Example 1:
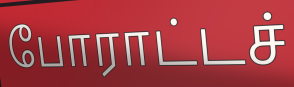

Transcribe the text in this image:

போராட்டச்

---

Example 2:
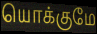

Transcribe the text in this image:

யொக்குமே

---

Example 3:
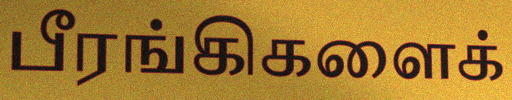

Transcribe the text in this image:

பீரங்கிகளைக்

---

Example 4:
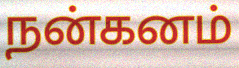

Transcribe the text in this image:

நன்கனம்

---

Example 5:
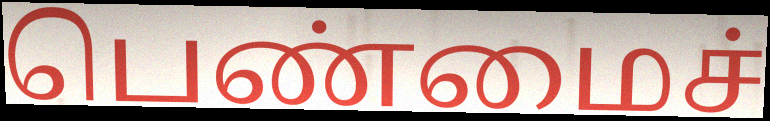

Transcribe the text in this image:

பெண்மைச்